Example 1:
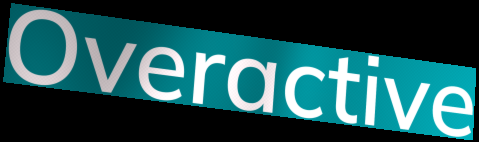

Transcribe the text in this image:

Overactive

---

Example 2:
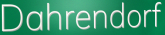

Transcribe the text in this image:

Dahrendorf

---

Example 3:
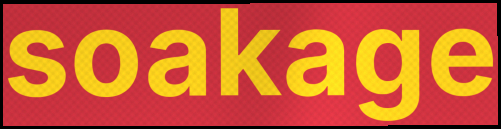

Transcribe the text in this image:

soakage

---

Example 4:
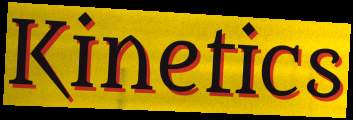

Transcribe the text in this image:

Kinetics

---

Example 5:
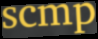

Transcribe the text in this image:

scmp